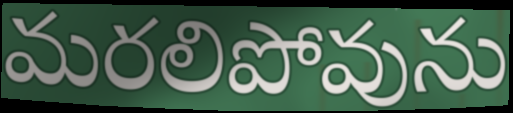
మరలిపోవును